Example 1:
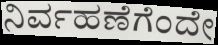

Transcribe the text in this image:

ನಿರ್ವಹಣೆಗೆಂದೇ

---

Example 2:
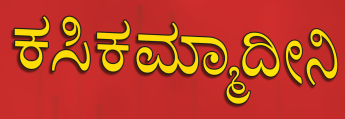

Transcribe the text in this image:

ಕಸಿಕಮ್ಮಾದೀನಿ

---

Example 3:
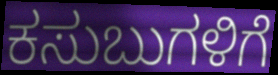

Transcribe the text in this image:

ಕಸುಬುಗಳಿಗೆ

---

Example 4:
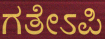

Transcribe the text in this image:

ಗತೇಽಪಿ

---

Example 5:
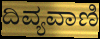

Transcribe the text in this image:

ದಿವ್ಯವಾಣಿ